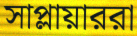
সাপ্লায়াররা